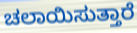
ಚಲಾಯಿಸುತ್ತಾರೆ